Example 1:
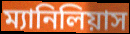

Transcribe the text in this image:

ম্যানিলিয়াস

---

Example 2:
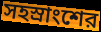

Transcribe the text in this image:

সহস্রাংশের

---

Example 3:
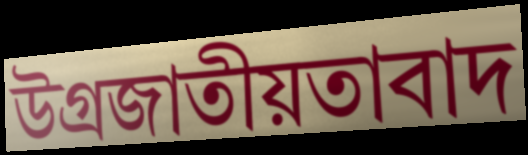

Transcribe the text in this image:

উগ্রজাতীয়তাবাদ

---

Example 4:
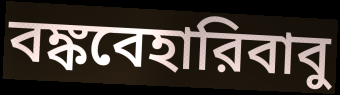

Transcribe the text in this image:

বঙ্কবেহারিবাবু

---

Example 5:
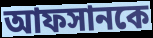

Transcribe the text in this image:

আফসানকে